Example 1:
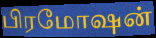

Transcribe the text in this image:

பிரமோஷன்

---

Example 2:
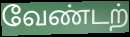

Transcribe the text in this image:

வேண்டற்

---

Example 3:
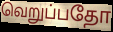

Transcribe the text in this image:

வெறுப்பதோ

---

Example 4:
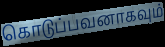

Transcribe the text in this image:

கொடுப்பவனாகவும்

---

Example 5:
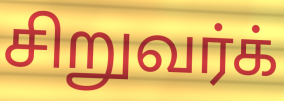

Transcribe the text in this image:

சிறுவர்க்